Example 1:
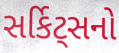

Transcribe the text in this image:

સર્કિટ્સનો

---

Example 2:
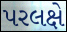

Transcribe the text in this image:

પરલક્ષે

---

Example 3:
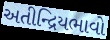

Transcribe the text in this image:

અતીન્દ્રિયભાવો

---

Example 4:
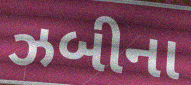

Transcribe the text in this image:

ઝબીના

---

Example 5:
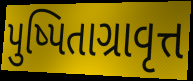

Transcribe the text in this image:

પુષ્પિતાગ્રાવૃત્ત